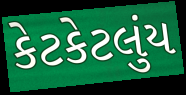
કેટકેટલુંય